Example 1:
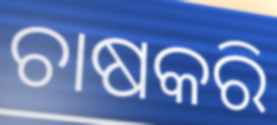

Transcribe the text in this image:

ଚାଷକରି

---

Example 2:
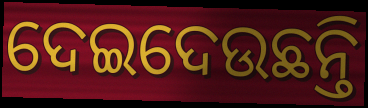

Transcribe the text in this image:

ଦେଇଦେଉଛନ୍ତି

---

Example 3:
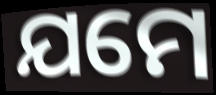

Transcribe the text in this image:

ଯମେ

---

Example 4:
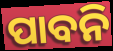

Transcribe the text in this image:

ପାବନି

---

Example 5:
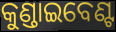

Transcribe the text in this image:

କୁଣ୍ଡାଇବେଣ୍ଟ